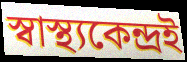
স্বাস্থ্যকেন্দ্ৰই